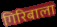
गिरिबाला